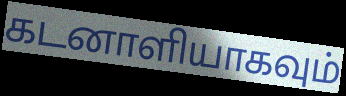
கடனாளியாகவும்